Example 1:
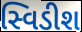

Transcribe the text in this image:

સ્વિડીશ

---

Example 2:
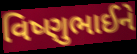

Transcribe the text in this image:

વિષ્ણુભાઈને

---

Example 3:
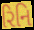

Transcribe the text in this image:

રિનિ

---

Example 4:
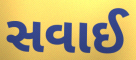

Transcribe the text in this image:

સવાઈ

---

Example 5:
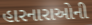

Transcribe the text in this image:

હારનારાઓની